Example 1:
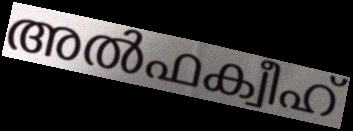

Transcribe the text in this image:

അൽഫക്വീഹ്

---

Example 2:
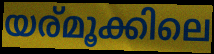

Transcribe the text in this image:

യര്മൂക്കിലെ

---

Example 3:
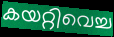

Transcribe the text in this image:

കയറ്റിവെച്ച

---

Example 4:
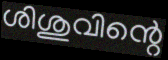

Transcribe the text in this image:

ശിശുവിന്റെ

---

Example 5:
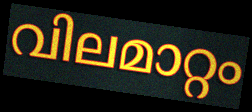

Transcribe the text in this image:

വിലമാറ്റം